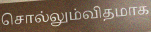
சொல்லும்விதமாக